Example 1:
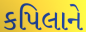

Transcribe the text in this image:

કપિલાને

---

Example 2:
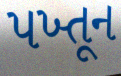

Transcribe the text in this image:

પખ્તૂન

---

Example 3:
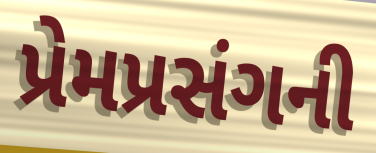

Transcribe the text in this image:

પ્રેમપ્રસંગની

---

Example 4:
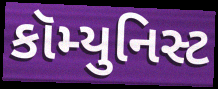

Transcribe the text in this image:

કૉમ્યુનિસ્ટ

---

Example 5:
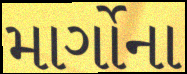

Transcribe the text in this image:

માર્ગોના